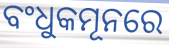
ବଂଧୁକମୂନରେ